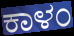
ಕಾಳಂ